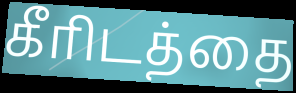
கீரிடத்தை